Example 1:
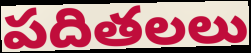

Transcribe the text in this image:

పదితలలు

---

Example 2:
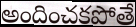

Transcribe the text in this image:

అందించకపోతే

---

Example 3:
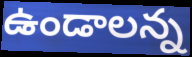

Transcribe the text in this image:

ఉండాలన్న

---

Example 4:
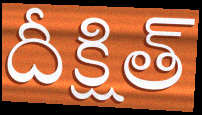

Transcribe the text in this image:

దీక్షిత్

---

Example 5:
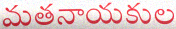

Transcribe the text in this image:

మతనాయకుల